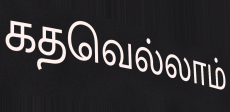
கதவெல்லாம்